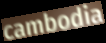
cambodia